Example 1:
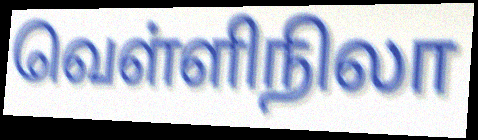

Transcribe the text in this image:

வெள்ளிநிலா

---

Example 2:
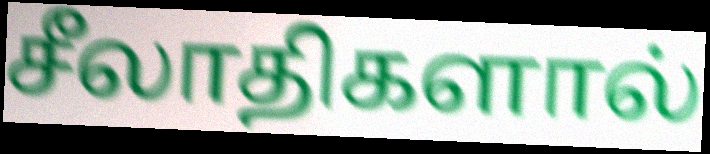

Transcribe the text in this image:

சீலாதிகளால்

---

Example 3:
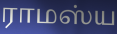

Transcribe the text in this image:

ராமஸ்ய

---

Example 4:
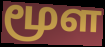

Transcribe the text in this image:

மூள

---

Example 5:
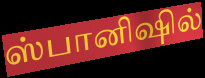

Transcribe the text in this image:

ஸ்பானிஷில்